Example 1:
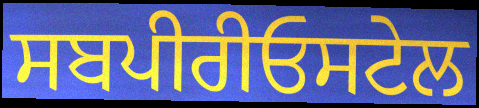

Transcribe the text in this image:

ਸਬਪੀਰੀਓਸਟੇਲ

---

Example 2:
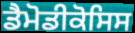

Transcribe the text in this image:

ਡੈਮੋਡੀਕੋਸਿਸ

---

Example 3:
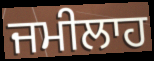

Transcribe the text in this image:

ਜਮੀਲਾਹ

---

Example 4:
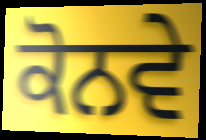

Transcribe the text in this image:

ਕੋਨਵੇ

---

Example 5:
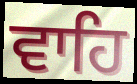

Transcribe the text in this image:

ਵਾਹਿ